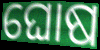
ଘୋଷ